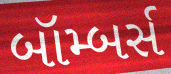
બૉમ્બર્સ